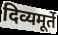
दिव्यमूर्ते